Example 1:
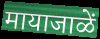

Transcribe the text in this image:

मायाजाळें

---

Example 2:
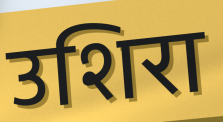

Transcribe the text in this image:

उशिरा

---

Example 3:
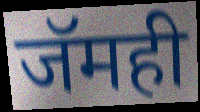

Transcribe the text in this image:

जॅमही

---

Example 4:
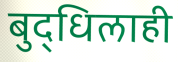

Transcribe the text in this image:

बुद्धिलाही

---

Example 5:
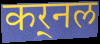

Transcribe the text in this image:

कर्नल